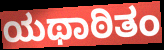
ಯಥಾಠಿತಂ